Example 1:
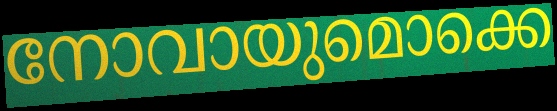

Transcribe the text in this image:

നോവായുമൊക്കെ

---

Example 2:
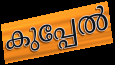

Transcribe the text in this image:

കുപ്പേൽ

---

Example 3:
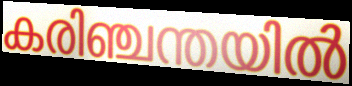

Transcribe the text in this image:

കരിഞ്ചന്തയിൽ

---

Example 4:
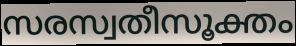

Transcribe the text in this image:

സരസ്വതീസൂക്തം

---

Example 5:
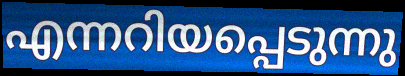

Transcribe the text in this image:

എന്നറിയപ്പെടുന്നു